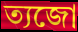
ত্যজো